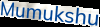
Mumukshu